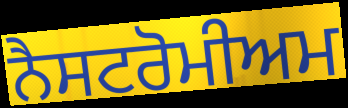
ਨੈਸਟਰੋਮੀਅਮ